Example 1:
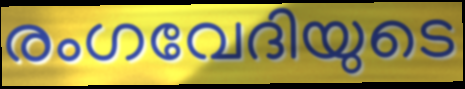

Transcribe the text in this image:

രംഗവേദിയുടെ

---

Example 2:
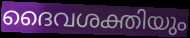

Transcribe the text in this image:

ദൈവശക്തിയും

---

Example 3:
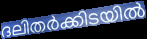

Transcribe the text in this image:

ദലിതർക്കിടയിൽ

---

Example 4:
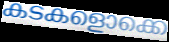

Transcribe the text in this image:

കടകളൊക്കെ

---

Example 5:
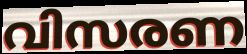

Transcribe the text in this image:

വിസരണ